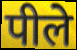
पीले